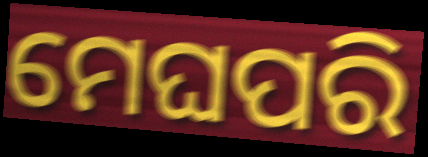
ମେଘପରି